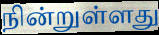
நின்றுள்ளது